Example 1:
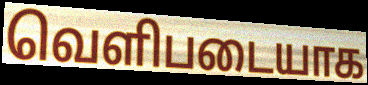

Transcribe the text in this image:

வெளிபடையாக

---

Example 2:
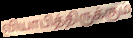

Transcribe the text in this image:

வியாபித்திருக்கும்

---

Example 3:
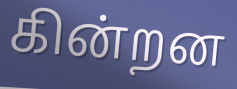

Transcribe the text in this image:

கின்றன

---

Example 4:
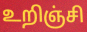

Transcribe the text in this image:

உறிஞ்சி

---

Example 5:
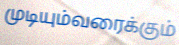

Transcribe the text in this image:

முடியும்வரைக்கும்